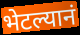
भेटल्यानं